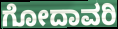
ಗೋದಾವರಿ